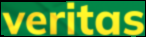
veritas